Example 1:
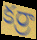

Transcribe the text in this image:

కర్రా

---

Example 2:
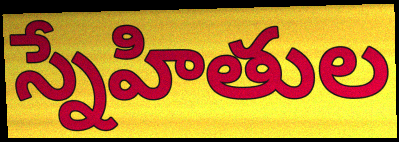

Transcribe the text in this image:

స్నేహితుల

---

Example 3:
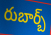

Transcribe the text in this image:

రుబార్బ్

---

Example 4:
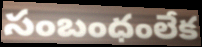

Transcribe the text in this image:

సంబంధంలేక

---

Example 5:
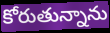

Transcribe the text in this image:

కోరుతున్నాను